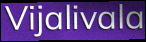
Vijalivala